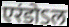
एरंडोऽल